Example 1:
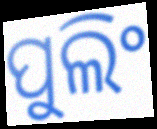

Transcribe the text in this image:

ପୁଲିଂ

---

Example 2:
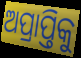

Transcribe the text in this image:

ଅପ୍ରାପ୍ତିକୁ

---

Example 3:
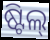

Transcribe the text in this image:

ଷ୍ଟିଲ୍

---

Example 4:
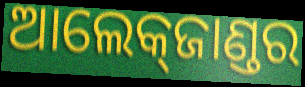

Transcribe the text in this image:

ଆଲେକ୍‌ଜାଣ୍ଡର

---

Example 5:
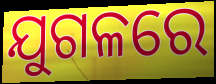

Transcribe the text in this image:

ଯୁଗଳରେ